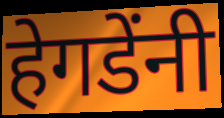
हेगडेंनी